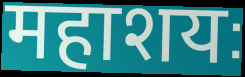
महाशयः